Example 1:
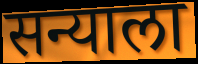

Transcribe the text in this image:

सन्याला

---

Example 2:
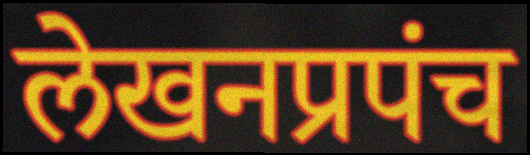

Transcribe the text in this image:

लेखनप्रपंच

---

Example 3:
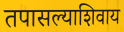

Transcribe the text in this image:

तपासल्याशिवाय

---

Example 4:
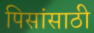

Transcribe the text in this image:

पिसांसाठी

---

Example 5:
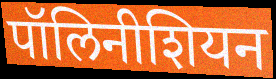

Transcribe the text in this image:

पॉलिनीशियन